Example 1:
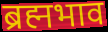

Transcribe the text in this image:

ब्रह्मभाव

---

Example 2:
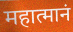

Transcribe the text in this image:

महात्मानं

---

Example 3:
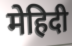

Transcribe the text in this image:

मेहिदी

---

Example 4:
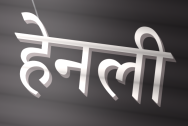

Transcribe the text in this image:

हेनली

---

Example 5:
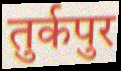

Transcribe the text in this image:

तुर्कपुर